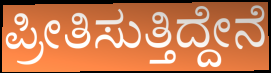
ಪ್ರೀತಿಸುತ್ತಿದ್ದೇನೆ